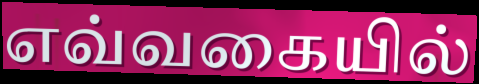
எவ்வகையில்